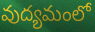
వుద్యమంలో